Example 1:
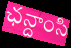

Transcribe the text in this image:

ఛన్దాంసి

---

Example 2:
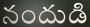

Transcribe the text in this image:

నందుడి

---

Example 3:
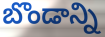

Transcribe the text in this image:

బొండాన్ని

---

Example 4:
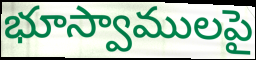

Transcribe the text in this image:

భూస్వాములపై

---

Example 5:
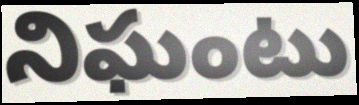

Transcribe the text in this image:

నిఘంటు